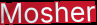
Mosher